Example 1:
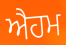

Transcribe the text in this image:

ਐਹਮ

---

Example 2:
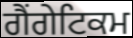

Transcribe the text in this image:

ਗੈਂਗੇਟਿਕਮ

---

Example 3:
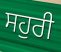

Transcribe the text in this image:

ਸਹੁਰੀ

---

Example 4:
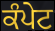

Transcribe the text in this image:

ਕੰਪੇਟ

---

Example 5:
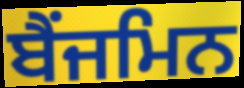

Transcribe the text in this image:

ਬੈਂਜਮਿਨ